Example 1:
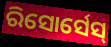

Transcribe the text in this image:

ରିସୋର୍ସେସ୍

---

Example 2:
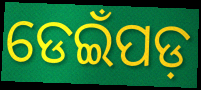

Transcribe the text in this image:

ଡେଇଁପଡ଼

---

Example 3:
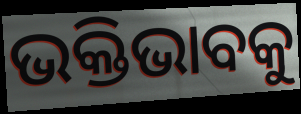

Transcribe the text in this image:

ଭକ୍ତିଭାବକୁ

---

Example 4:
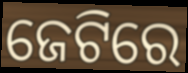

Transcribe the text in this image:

ଜେଟିରେ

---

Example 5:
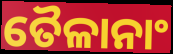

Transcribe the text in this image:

ତୈଳାନାଂ